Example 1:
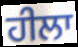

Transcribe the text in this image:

ਹੀਲਾ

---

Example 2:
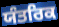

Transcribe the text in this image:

ਯੰਤਰਿਕ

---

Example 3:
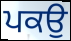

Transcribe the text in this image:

ਪਕਉ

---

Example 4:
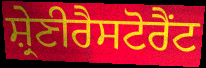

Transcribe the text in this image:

ਸ਼੍ਰੇਣੀਰੈਸਟੋਰੈਂਟ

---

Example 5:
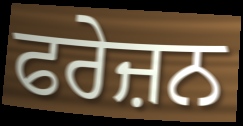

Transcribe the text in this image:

ਫਰੇਜ਼ਨ